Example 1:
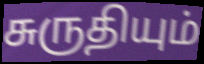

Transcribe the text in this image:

சுருதியும்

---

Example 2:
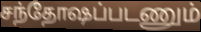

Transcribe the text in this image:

சந்தோஷப்படணும்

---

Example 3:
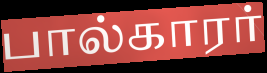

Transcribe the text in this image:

பால்காரர்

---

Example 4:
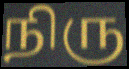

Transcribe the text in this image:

நிரு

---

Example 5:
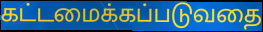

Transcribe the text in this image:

கட்டமைக்கப்படுவதை